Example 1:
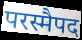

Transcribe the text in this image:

परस्मैपद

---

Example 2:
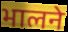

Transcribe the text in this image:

भालने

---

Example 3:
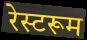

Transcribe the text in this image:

रेस्टरूम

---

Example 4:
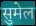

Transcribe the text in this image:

सुमेल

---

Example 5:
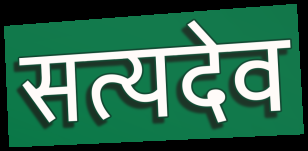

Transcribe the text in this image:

सत्यदेव